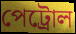
পেট্ৰোল